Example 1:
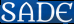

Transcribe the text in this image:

SADE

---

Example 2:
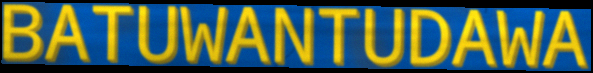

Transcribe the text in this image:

BATUWANTUDAWA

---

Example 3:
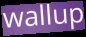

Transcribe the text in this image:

wallup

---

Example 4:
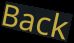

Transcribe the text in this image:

Back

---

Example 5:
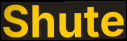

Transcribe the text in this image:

Shute